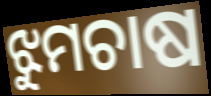
ଝୁମଚାଷ